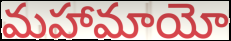
మహామాయో